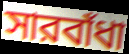
সারবাঁধা